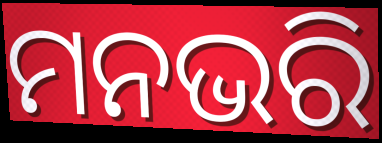
ମନଭରି